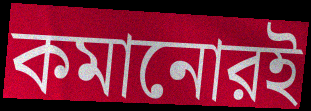
কমানোরই